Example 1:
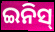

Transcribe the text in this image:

ଇନିସ୍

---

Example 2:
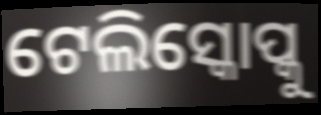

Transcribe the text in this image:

ଟେଲିସ୍କୋପ୍କୁ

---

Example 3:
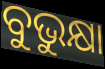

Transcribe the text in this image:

ବୁଭୁକ୍ଷା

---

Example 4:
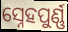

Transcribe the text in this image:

ସ୍ନେହପୁର୍ଣ୍ଣ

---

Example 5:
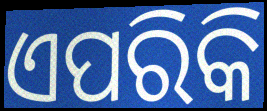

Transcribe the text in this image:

ଏପରିକି